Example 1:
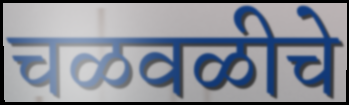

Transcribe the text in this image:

चळवळीचे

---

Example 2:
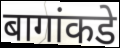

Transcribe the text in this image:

बागांकडे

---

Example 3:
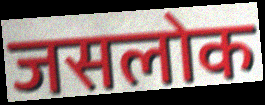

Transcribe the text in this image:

जसलोक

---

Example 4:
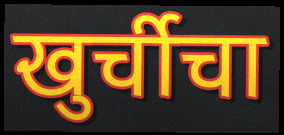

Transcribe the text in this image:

खुर्चीचा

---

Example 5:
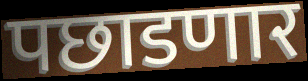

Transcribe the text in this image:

पछाडणार